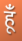
हूँं